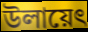
উলায়েৎ